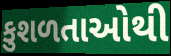
કુશળતાઓથી